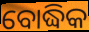
ବୋଦ୍ଧିକ